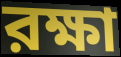
রক্ষা